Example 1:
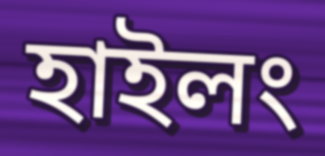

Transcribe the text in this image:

হাইলং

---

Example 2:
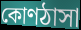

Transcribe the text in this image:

কোণঠাসা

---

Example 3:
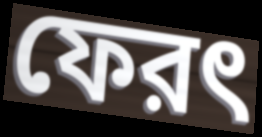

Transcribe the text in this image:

ফেরৎ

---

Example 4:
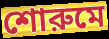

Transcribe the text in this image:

শোরুমে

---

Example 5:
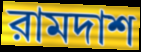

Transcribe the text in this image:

রামদাশ